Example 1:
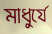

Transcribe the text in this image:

মাধুর্যে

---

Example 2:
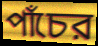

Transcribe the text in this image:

পাঁচের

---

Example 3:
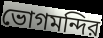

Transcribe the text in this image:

ভোগমন্দির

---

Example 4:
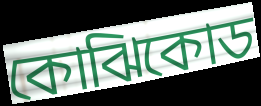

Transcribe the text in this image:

কোঝিকোড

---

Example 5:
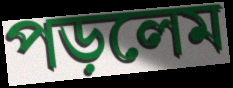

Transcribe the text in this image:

পড়লেম